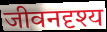
जीवनदृश्य